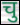
चु